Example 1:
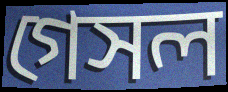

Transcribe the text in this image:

গেসল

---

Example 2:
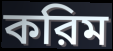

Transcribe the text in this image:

করিম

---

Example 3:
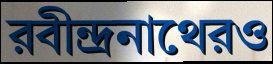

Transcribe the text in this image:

রবীন্দ্রনাথেরও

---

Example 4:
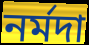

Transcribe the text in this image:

নর্মদা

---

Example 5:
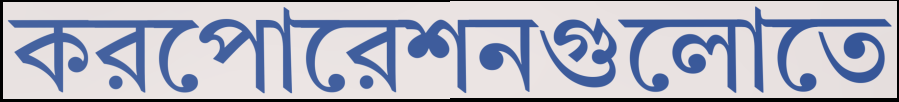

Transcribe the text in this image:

করপোরেশনগুলোতে